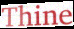
Thine